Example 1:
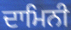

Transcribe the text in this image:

ਦਾਮਿਨੀ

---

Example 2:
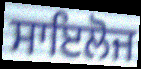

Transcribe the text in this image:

ਸਾਇਲੋਜ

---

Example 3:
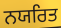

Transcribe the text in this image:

ਨਯਰਿਤ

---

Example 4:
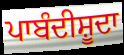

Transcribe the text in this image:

ਪਾਬੰਦੀਸ਼ੂਦਾ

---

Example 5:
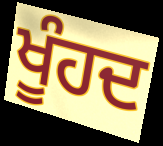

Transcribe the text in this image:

ਖੂੰਹਦ